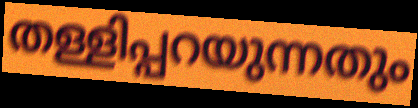
തള്ളിപ്പറയുന്നതും